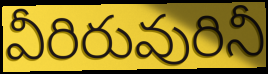
వీరిరువురినీ